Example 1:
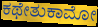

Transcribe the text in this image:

ಕಥೇತುಕಾಮೋ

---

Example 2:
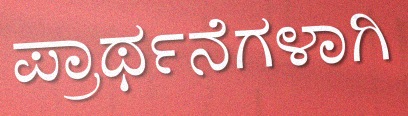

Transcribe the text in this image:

ಪ್ರಾರ್ಥನೆಗಳಾಗಿ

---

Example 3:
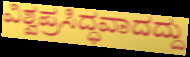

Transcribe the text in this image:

ವಿಶ್ವಪ್ರಸಿದ್ಧವಾದದ್ದು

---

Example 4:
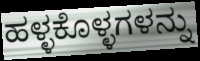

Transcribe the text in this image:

ಹಳ್ಳಕೊಳ್ಳಗಳನ್ನು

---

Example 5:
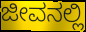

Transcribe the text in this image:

ಜೀವನಲ್ಲಿ